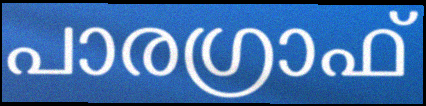
പാരഗ്രാഫ്